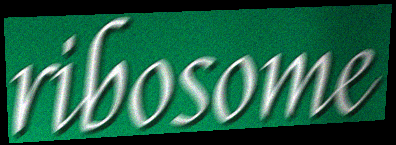
ribosome